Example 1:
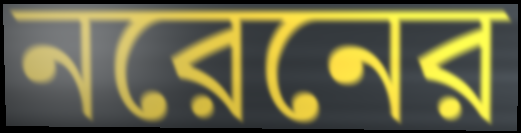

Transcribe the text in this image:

নরেনের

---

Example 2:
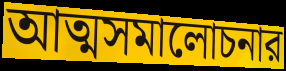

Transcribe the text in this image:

আত্মসমালোচনার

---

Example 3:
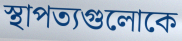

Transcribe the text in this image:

স্থাপত্যগুলোকে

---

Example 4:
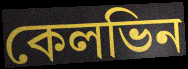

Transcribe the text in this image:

কেলভিন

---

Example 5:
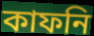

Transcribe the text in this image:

কাফনি